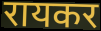
रायकर